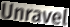
Unravel